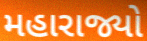
મહારાજ્યો